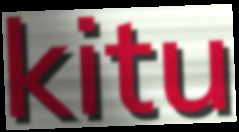
kitu